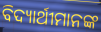
ବିଦ୍ୟାର୍ଥୀମାନଙ୍କ